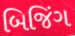
બિજિંગ